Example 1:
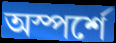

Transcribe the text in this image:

অস্পর্শে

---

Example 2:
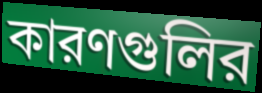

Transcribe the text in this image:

কারণগুলির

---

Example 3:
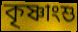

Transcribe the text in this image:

কৃষ্ণাংশু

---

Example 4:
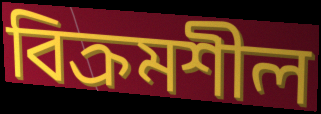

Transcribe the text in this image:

বিক্রমশীল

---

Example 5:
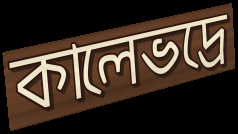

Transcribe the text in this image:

কালেভদ্রে